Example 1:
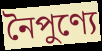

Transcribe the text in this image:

নৈপুণ্যে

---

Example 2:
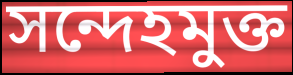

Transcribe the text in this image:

সন্দেহমুক্ত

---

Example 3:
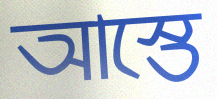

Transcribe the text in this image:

আস্তে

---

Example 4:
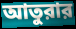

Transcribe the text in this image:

আতুরার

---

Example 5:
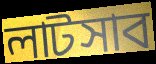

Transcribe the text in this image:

লাটসাব